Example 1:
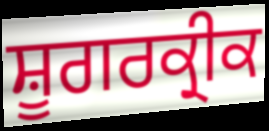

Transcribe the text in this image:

ਸ਼ੂਗਰਕ੍ਰੀਕ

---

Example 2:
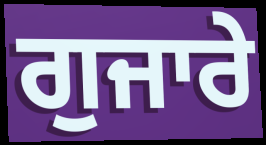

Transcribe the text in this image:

ਗੁਜਾਰੇ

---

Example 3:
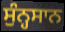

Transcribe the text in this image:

ਸੁੰਨ੍ਹਸਾਨ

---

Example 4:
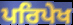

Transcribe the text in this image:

ਪਰਿਪੇਖ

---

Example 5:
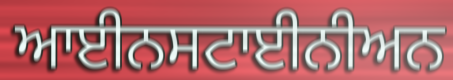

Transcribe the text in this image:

ਆਈਨਸਟਾਈਨੀਅਨ